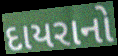
દાયરાનો